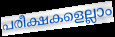
പരീക്ഷകളെല്ലാം